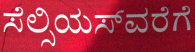
ಸೆಲ್ಸಿಯಸ್‍ವರೆಗೆ